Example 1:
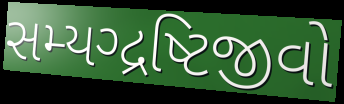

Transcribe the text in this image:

સમ્યગ્દ્રષ્ટિજીવો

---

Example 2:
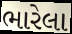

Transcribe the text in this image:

ભારેલા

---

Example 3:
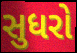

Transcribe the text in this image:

સુધરો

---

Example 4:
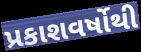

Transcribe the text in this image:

પ્રકાશવર્ષોથી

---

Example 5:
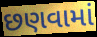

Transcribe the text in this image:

છણવામાં